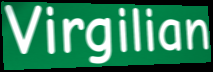
Virgilian